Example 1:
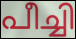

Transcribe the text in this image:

പീച്ചി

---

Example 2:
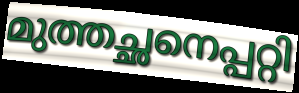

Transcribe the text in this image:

മുത്തച്ഛനെപ്പറ്റി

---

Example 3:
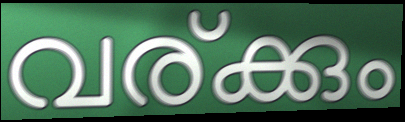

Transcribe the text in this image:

വര്ക്കും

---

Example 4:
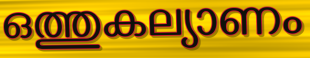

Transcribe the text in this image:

ഒത്തുകല്യാണം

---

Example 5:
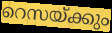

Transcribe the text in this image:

റെസയ്ക്കും